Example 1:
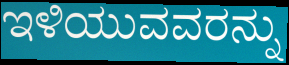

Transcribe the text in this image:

ಇಳಿಯುವವರನ್ನು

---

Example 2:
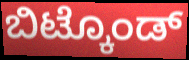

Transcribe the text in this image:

ಬಿಟ್ಕೊಂಡ್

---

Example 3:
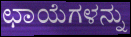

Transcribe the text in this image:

ಛಾಯೆಗಳನ್ನು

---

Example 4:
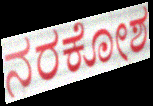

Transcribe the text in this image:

ನರಕೋಶ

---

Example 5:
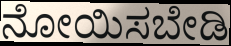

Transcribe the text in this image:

ನೋಯಿಸಬೇಡಿ